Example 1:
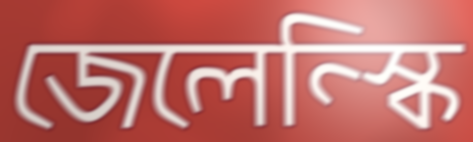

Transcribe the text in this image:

জেলেন্স্কি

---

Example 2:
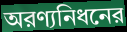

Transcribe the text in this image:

অরণ্যনিধনের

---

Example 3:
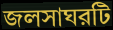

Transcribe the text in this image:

জলসাঘরটি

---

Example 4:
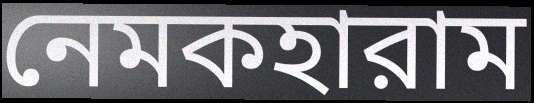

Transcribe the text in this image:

নেমকহারাম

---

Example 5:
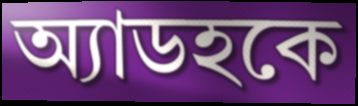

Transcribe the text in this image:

অ্যাডহকে